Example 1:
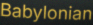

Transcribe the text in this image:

Babylonian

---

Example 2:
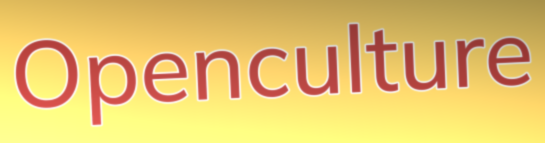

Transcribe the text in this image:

Openculture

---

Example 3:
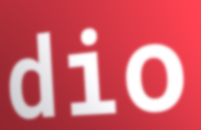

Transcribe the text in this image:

dio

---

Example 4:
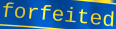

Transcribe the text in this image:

forfeited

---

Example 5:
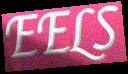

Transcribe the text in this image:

EELS